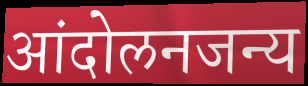
आंदोलनजन्य